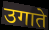
उगाते